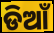
ଡିଆଁ